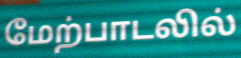
மேற்பாடலில்